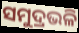
ସମୁଦ୍ରଭଳି